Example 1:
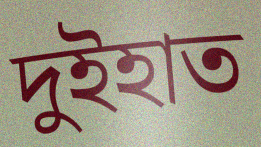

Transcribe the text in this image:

দুইহাত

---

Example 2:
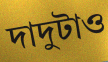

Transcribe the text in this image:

দাদুটাও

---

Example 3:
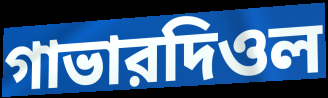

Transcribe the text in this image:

গাভারদিওল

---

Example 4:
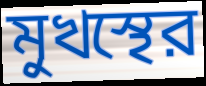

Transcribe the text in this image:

মুখস্থের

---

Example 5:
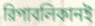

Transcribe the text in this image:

রিপাবলিকানই